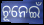
ଚୂନେଇଁ